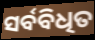
ସର୍ବବିଧିତ